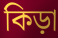
কিড়া